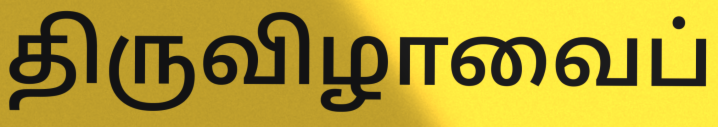
திருவிழாவைப்